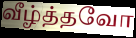
வீழ்த்தவோ